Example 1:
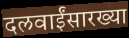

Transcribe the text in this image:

दलवाईंसारख्या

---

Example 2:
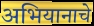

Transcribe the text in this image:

अभियानाचे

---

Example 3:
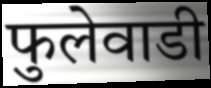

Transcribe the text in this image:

फुलेवाडी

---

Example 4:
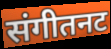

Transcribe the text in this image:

संगीतनट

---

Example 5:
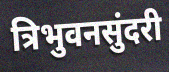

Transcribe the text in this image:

त्रिभुवनसुंदरी